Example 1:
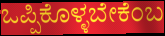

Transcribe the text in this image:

ಒಪ್ಪಿಕೊಳ್ಳಬೇಕೆಂಬ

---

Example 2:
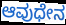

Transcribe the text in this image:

ಆವುಧೇನ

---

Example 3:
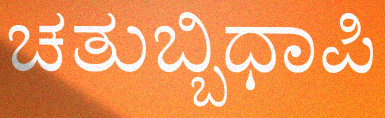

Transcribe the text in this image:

ಚತುಬ್ಬಿಧಾಪಿ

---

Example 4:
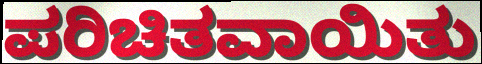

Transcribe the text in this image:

ಪರಿಚಿತವಾಯಿತು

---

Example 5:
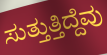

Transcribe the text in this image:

ಸುತ್ತುತ್ತಿದ್ದೆವು